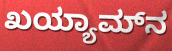
ಖಯ್ಯಾಮ್‌ನ